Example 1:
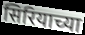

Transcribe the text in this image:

सिरियाच्या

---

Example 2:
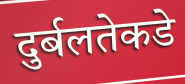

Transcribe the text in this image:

दुर्बलतेकडे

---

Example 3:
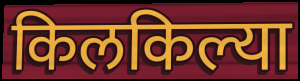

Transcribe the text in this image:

किलकिल्या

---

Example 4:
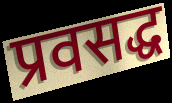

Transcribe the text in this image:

प्रवसद्ध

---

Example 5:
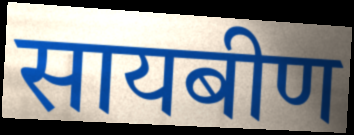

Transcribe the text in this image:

सायबीण